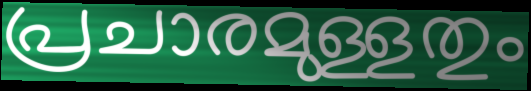
പ്രചാരമുള്ളതും